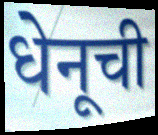
धेनूची